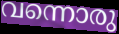
വന്നൊരു